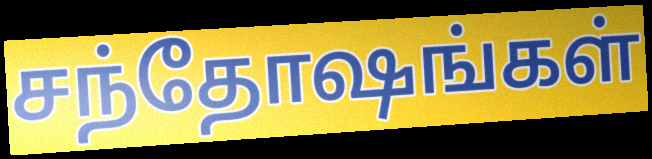
சந்தோஷங்கள்